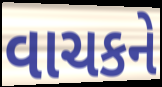
વાચકને